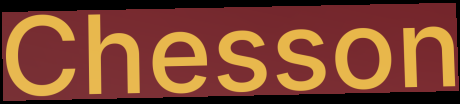
Chesson